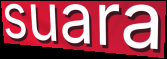
suara